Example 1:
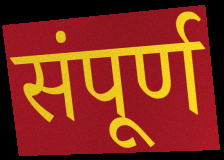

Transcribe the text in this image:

संपूर्ण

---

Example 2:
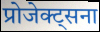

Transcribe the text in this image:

प्रोजेक्ट्सना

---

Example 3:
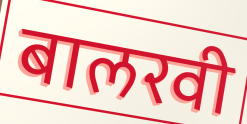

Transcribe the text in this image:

बालरवी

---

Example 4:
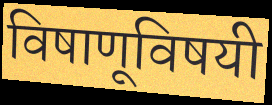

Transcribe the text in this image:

विषाणूविषयी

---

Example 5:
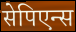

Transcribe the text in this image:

सेपिएन्स